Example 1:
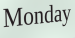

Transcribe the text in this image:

Monday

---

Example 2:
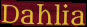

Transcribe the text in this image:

Dahlia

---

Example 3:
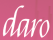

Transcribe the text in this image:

daro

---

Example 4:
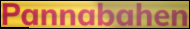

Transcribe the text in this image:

Pannabahen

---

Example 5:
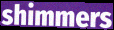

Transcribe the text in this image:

shimmers